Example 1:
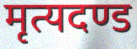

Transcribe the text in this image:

मृत्यदण्ड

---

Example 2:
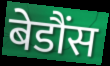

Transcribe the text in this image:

बेडौंस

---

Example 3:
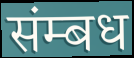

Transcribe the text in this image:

संम्बध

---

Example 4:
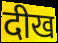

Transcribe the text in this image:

दीख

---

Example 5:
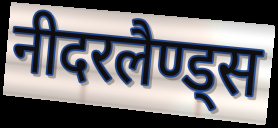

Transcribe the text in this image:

नीदरलैण्ड्स